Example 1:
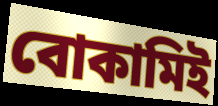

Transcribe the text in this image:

বোকামিই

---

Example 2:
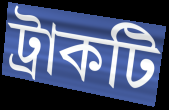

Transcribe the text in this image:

ট্রাকটি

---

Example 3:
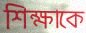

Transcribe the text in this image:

শিক্ষাকে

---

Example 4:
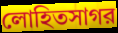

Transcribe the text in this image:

লোহিতসাগর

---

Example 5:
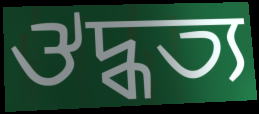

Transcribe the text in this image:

ঔদ্ধত্য